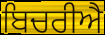
ਬਿਚਰੀਐ